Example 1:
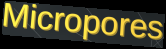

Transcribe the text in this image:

Micropores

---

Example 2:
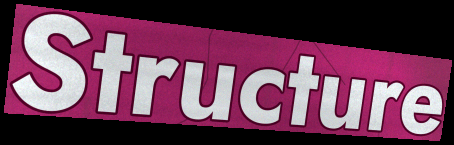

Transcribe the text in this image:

Structure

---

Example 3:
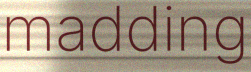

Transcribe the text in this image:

madding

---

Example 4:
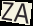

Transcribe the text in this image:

ZA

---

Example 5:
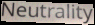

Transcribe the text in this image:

Neutrality